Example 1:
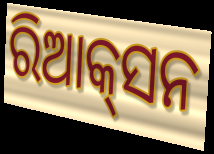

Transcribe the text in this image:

ରିଆକ୍‌ସନ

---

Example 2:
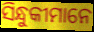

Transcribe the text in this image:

ସିନ୍ଧୁକୀମାନେ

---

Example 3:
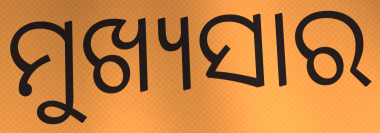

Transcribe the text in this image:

ମୁଖ୍ୟସାର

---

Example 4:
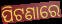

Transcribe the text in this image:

ପିଟଣାରେ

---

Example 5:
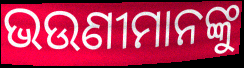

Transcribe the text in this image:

ଭଉଣୀମାନଙ୍କୁ